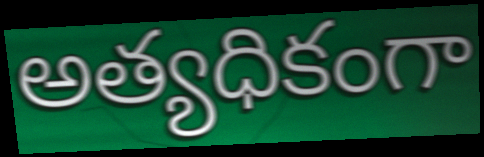
అత్యధికంగా